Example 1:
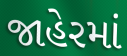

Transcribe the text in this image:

જાહેરમાં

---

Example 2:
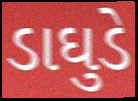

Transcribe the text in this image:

ડાઘુડે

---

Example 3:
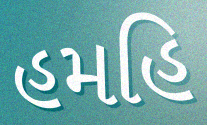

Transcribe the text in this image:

હમહિ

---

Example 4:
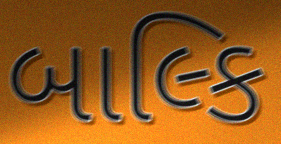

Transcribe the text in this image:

બાલ્કિ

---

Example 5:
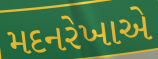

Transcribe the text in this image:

મદનરેખાએ